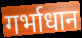
गर्भाधान